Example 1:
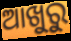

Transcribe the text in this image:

ଆଖୁରୁ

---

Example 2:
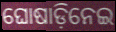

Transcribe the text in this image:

ଘୋଷାଡ଼ିନେଇ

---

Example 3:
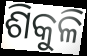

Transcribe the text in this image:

ଶିକୁଳି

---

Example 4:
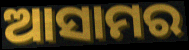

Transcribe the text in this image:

ଆସାମର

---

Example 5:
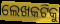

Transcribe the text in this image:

ଲେଖକଟିକୁ